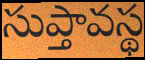
సుప్తావస్థ